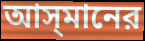
আস্‌মানের